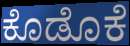
ಕೊಡೊಕೆ